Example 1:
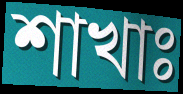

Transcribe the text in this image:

শাখাঃ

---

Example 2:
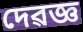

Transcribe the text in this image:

দেৱজ্ঞ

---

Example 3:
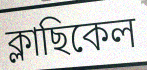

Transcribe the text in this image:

ক্লাছিকেল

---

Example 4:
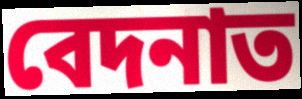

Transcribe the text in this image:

বেদনাত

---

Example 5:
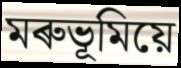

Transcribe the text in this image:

মৰুভূমিয়ে